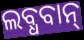
ଲବ୍ଧବାନ୍